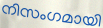
നിസംഗമായി